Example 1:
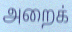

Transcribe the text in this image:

அறைக்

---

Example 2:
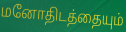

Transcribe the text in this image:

மனோதிடத்தையும்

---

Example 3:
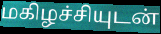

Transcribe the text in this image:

மகிழச்சியுடன்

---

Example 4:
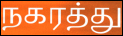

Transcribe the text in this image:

நகரத்து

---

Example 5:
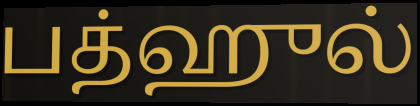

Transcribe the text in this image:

பத்ஹுல்